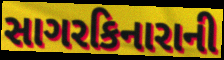
સાગરકિનારાની